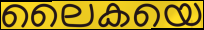
ലൈകയെ